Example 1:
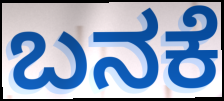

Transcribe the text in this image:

ಬನಕೆ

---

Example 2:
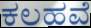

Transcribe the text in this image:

ಕಲಹವೆ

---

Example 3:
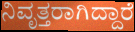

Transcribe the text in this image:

ನಿವೃತ್ತರಾಗಿದ್ದಾರೆ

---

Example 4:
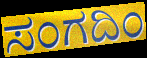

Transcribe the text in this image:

ಸಂಗದಿಂ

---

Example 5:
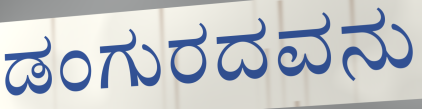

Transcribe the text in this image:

ಡಂಗುರದವನು